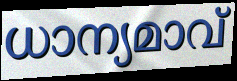
ധാന്യമാവ്